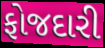
ફોજદારી